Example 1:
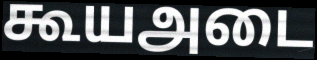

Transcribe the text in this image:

கூயஅடை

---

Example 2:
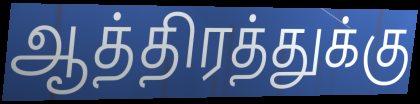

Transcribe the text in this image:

ஆத்திரத்துக்கு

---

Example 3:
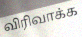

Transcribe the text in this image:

விரிவாக்க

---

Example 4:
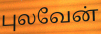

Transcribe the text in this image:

புலவேன்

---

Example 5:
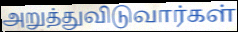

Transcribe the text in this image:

அறுத்துவிடுவார்கள்